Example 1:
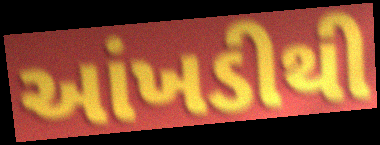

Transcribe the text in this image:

આંખડીથી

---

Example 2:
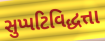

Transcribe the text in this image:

સુપ્પટિવિદ્ધત્તા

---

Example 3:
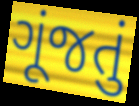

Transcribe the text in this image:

ગૂંજતું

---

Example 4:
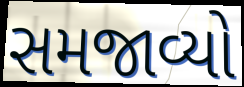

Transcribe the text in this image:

સમજાવ્યો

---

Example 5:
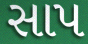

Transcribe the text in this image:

સાપ